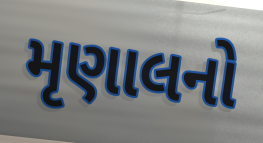
મૃણાલનો